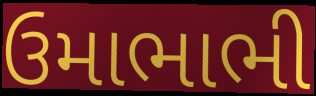
ઉમાભાભી